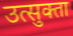
उत्सुक्ता